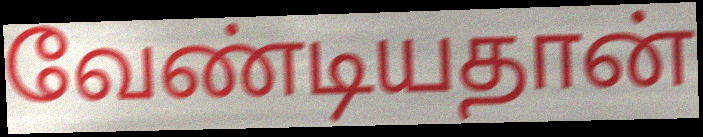
வேண்டியதான்